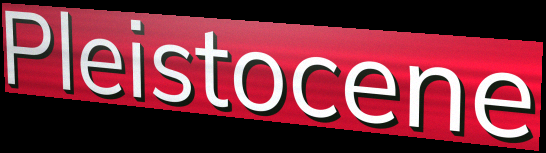
Pleistocene